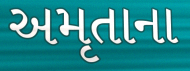
અમૃતાના